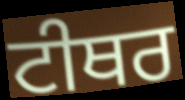
ਟੀਥਰ